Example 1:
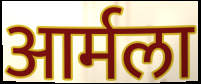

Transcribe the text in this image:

आर्मला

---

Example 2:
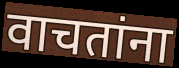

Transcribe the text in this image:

वाचतांना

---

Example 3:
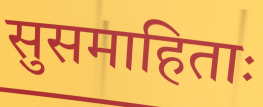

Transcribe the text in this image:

सुसमाहिताः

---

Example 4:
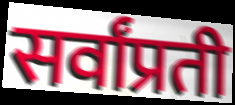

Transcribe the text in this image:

सर्वांप्रती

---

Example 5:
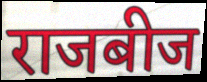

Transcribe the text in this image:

राजबीज